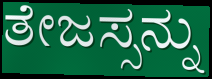
ತೇಜಸ್ಸನ್ನು